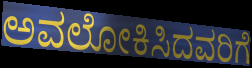
ಅವಲೋಕಿಸಿದವರಿಗೆ